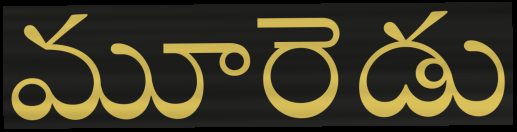
మూరెడు